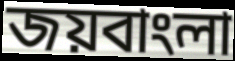
জয়বাংলা